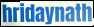
hridaynath